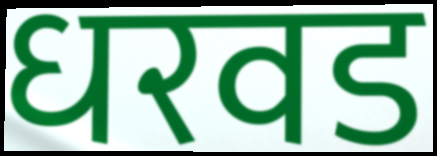
धरवड